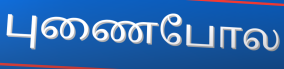
புணைபோல